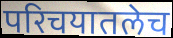
परिचयातलेच